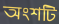
অংশটি